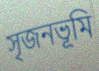
সৃজনভূমি